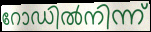
റോഡിൽനിന്ന്